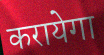
करायेगा